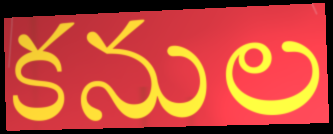
కనుల